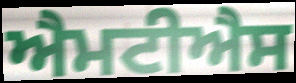
ਐਮਟੀਐਸ